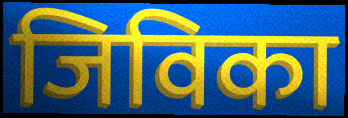
जिविका